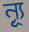
ন্যূ